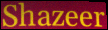
Shazeer